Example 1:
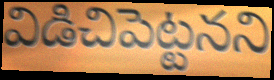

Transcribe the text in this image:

విడిచిపెట్టనని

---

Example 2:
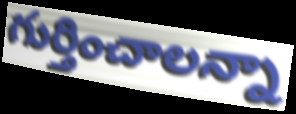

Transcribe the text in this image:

గుర్తించాలన్నా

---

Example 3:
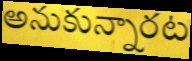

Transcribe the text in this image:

అనుకున్నారట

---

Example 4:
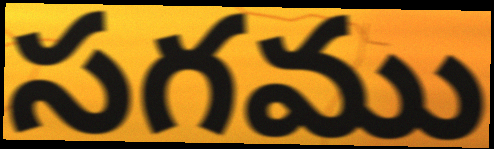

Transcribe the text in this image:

సగము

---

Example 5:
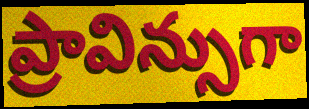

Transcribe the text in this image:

ప్రావిన్సుగా